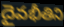
దైవభీతిని